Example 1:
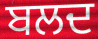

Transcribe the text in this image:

ਬਲਦ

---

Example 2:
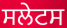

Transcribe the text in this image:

ਸਲੇਟਸ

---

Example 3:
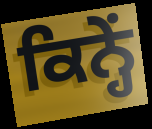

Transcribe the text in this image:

ਕਿਨ੍ਹੇਂ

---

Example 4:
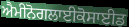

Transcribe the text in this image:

ਐਮੀਨੋਗਲਾਈਕੋਸਾਈਡ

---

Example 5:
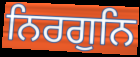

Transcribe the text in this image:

ਨਿਰਗੁਨਿ